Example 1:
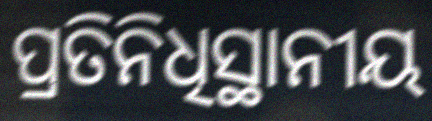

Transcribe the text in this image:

ପ୍ରତିନିଧିସ୍ଥାନୀୟ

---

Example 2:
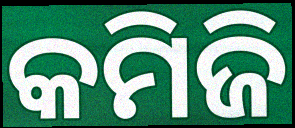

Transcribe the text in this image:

କମିଜି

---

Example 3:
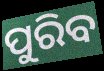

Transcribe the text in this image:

ପୁରିବ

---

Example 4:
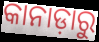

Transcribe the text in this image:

କାନାଡ଼ାରୁ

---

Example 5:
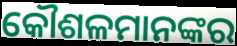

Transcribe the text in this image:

କୌଶଳମାନଙ୍କର